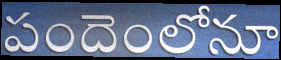
పందెంలోనూ